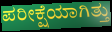
ಪರೀಕ್ಷೆಯಾಗಿತ್ತು